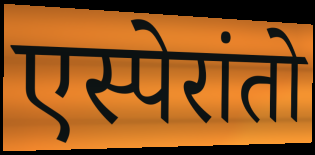
एस्पेरांतो